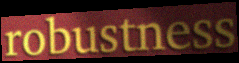
robustness